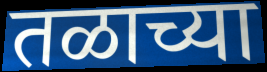
तळाच्या